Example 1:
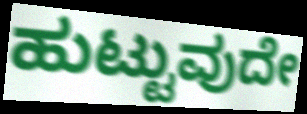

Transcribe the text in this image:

ಹುಟ್ಟುವುದೇ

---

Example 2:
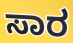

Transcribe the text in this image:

ಸಾರ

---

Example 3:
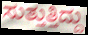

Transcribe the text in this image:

ಸುತ್ತುತ್ತಿದ್ದು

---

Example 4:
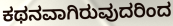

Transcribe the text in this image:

ಕಥನವಾಗಿರುವುದರಿಂದ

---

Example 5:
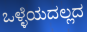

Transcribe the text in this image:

ಒಳ್ಳೆಯದಲ್ಲದ